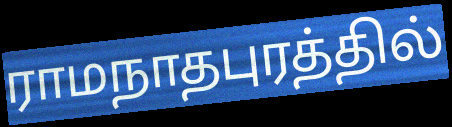
ராமநாதபுரத்தில்